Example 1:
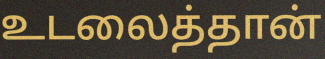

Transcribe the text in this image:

உடலைத்தான்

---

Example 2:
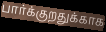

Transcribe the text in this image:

பார்க்குறதுக்காக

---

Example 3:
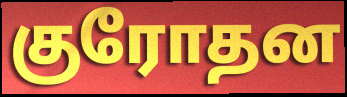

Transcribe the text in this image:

குரோதன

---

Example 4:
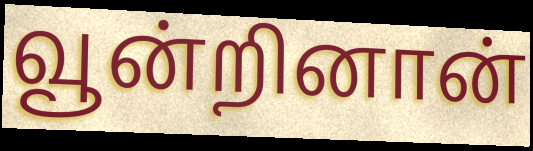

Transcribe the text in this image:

வூன்றினான்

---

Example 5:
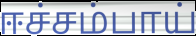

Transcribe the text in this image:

ஈச்சம்பாய்